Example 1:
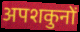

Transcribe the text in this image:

अपशकुनों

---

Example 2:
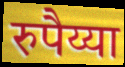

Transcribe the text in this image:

रुपैय्या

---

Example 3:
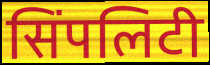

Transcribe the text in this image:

सिंपलिटी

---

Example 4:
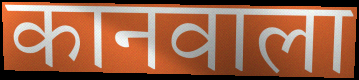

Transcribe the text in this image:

कानवाला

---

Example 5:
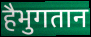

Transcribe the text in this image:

हैभुगतान